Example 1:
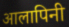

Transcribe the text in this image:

आलापिनी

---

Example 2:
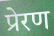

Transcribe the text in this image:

प्रेरण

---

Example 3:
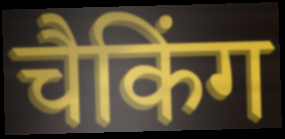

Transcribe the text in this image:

चैकिंग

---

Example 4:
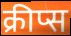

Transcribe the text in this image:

क्रीप्स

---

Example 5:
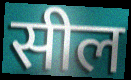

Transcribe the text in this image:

सील